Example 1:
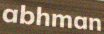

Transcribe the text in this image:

abhman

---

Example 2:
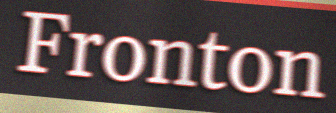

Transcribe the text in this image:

Fronton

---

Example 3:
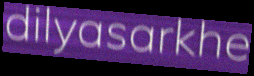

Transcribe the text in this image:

dilyasarkhe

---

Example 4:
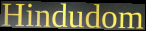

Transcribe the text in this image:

Hindudom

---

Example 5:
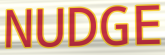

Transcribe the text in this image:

NUDGE